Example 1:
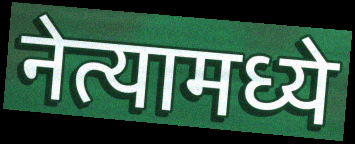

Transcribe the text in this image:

नेत्यामध्ये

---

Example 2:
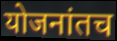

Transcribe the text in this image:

योजनांतच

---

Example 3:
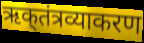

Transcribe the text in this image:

ऋक्‌तंत्रव्याकरण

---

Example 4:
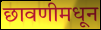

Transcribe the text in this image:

छावणीमधून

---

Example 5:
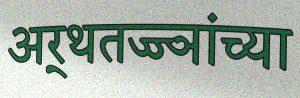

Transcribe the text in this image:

अर्थतज्ज्ञांच्या